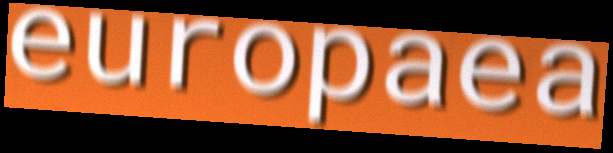
europaea